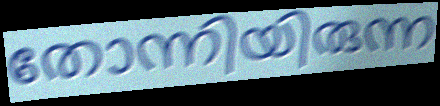
തോന്നിയിരുന്ന